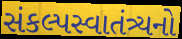
સંકલ્પસ્વાતંત્ર્યનો